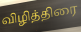
விழித்திரை